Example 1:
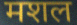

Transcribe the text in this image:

मशल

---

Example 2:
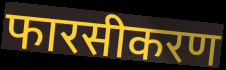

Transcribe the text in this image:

फारसीकरण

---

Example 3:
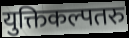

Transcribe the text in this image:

युक्तिकल्पतरु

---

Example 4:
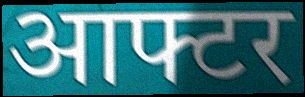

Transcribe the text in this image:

आफ्टर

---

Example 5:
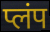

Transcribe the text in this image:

प्लंप